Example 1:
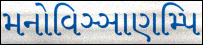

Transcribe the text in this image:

મનોવિઞ્ઞાણમ્પિ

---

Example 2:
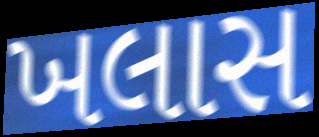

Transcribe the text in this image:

ખલાસ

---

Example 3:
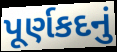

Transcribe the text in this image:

પૂર્ણકદનું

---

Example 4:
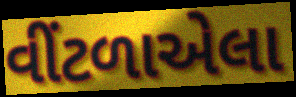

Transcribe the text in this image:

વીંટળાએલા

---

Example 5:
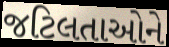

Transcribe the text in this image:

જટિલતાઓને